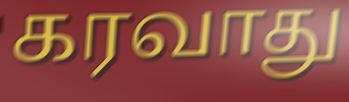
கரவாது